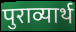
पुराव्यार्थ